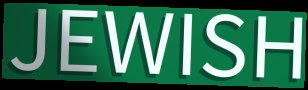
JEWISH